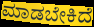
ಮಾಡಬೇಕಿದೆ